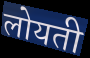
लोयती